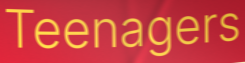
Teenagers